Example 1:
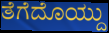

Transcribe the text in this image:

ತೆಗೆದೊಯ್ದು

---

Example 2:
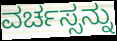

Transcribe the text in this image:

ವರ್ಚಸ್ಸನ್ನು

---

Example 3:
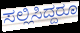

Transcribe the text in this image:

ಸಲ್ಲಿಸಿದ್ದರೂ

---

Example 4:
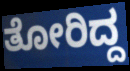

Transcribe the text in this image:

ತೋರಿದ್ದ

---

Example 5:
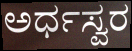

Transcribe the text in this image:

ಅರ್ಧಸ್ವರ